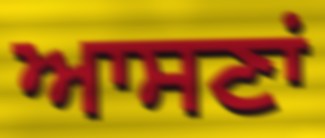
ਆਸਣਾਂ